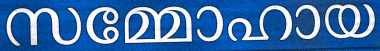
സമ്മോഹായ